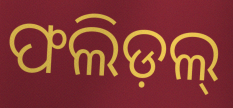
ଫଲିଡ଼ଲ୍